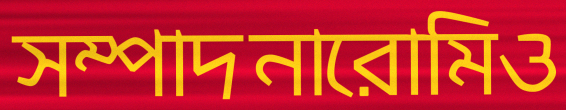
সম্পাদনারোমিও